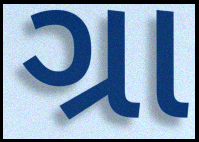
ગ્રા